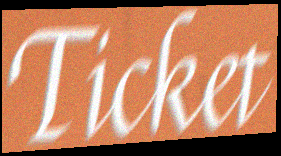
Ticket